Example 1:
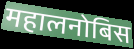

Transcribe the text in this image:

महालनोबिस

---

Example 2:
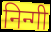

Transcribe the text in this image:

निन्गी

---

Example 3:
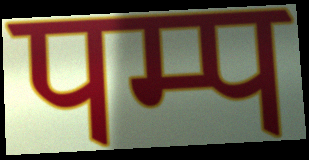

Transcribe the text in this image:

पम्प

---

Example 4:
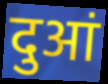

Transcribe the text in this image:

दुआं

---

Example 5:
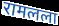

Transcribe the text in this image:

रामलला